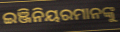
ଇଞ୍ଜିନିୟରମାନଙ୍କୁ